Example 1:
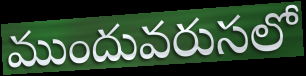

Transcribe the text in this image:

ముందువరుసలో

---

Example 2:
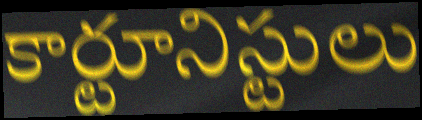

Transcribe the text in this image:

కార్టూనిస్టులు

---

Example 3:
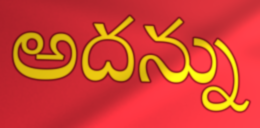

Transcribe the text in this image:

అదన్ను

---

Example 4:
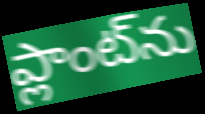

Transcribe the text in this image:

ప్లాంట్‌ను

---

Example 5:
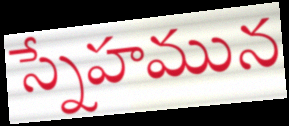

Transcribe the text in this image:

స్నేహమున